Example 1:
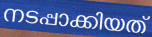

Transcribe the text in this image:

നടപ്പാക്കിയത്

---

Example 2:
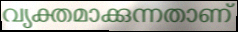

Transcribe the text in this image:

വ്യക്തമാക്കുന്നതാണ്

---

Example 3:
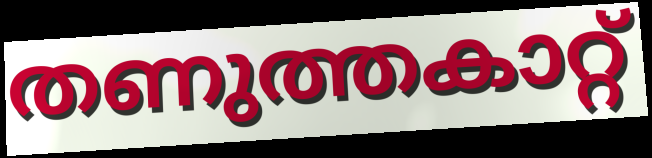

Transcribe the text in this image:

തണുത്തകാറ്റ്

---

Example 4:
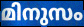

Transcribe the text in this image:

മിനുസം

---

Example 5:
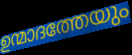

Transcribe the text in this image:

ഉന്മാദത്തേയും